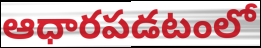
ఆధారపడటంలో